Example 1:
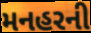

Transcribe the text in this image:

મનહરની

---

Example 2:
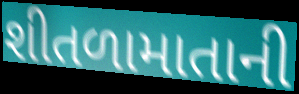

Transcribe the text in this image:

શીતળામાતાની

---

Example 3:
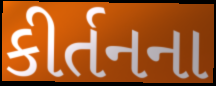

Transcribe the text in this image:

કીર્તનના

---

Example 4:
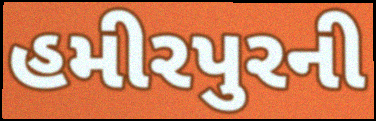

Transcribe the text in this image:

હમીરપુરની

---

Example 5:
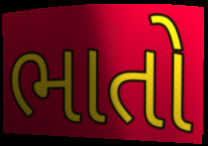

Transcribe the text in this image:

ભાતો